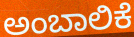
ಅಂಬಾಲಿಕೆ